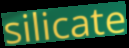
silicate